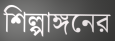
শিল্পাঙ্গনের